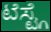
ಟೆಸ್ಟ್ಗೆ